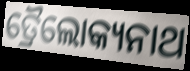
ତ୍ରୈଲୋକ୍ୟନାଥ